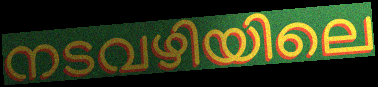
നടവഴിയിലെ